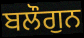
ਬਲੌਗੁਨ